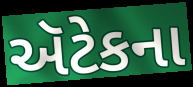
ઍટેકના